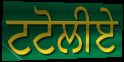
ਟਟੋਲੀਏ